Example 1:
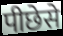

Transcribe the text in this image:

पीछेसे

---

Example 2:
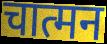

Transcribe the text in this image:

चात्मन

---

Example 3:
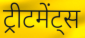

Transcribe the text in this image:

ट्रीटमेंट्स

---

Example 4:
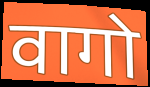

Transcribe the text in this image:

वागो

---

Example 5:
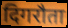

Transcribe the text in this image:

दिगरौता